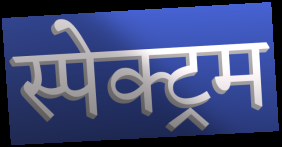
स्पेक्ट्रम